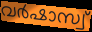
വർഷാസ്വ്